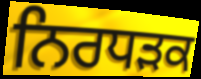
ਨਿਰਧੜਕ